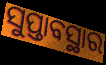
ସୁପ୍ତାବସ୍ଥାର